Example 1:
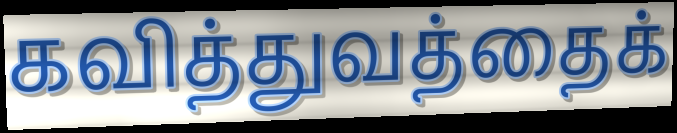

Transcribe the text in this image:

கவித்துவத்தைக்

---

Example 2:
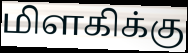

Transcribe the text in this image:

மிளகிக்கு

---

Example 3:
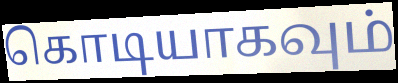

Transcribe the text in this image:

கொடியாகவும்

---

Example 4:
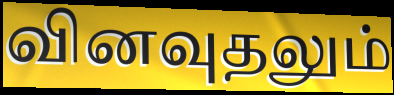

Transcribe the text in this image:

வினவுதலும்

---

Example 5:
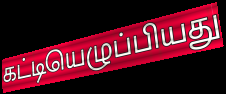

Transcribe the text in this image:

கட்டியெழுப்பியது